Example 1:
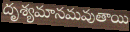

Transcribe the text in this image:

దృశ్యమానమవుతాయి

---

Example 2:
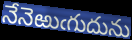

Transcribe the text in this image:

నేనెఱుఁగుదును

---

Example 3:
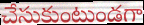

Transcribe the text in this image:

చేసుకుంటుండగా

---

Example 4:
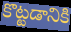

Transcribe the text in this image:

కొట్టడానికి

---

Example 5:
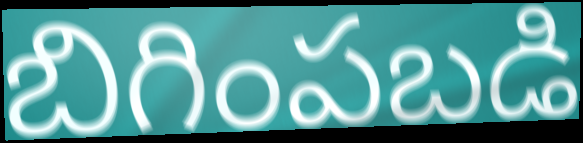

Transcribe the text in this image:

బిగింపబడి